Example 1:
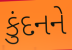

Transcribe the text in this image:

કુંદનને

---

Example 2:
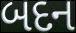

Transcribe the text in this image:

બદન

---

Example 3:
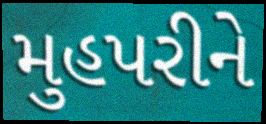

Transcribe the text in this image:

મુહપરીને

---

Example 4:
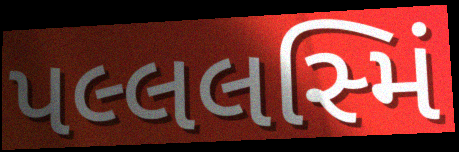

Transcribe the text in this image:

પલ્લલસ્મિં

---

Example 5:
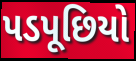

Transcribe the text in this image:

પડપૂછિયો